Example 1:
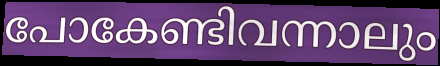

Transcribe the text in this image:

പോകേണ്ടിവന്നാലും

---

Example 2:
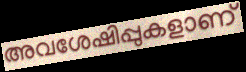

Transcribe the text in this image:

അവശേഷിപ്പുകളാണ്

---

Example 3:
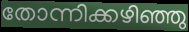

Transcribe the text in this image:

തോന്നിക്കഴിഞ്ഞു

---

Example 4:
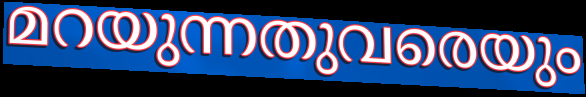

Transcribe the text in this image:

മറയുന്നതുവരെയും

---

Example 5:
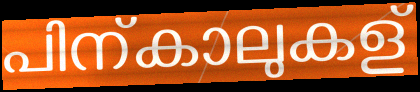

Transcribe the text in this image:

പിന്കാലുകള്